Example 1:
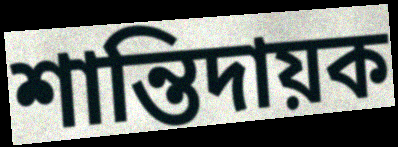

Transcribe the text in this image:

শান্তিদায়ক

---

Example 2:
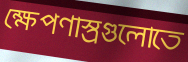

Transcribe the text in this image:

ক্ষেপণাস্ত্রগুলোতে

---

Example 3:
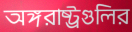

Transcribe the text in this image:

অঙ্গরাষ্ট্রগুলির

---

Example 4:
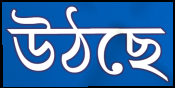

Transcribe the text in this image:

উঠছে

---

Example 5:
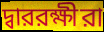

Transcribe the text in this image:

দ্বাররক্ষীরা